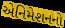
એનિમેશનનો